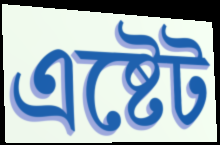
এষ্টেট